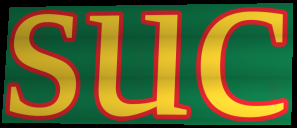
suc